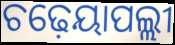
ଚଢ଼େୟାପଲ୍ଲୀ